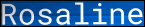
Rosaline